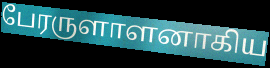
பேரருளாளனாகிய